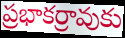
ప్రభాకర్రావుకు